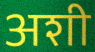
अशी